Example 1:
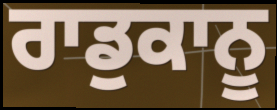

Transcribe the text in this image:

ਰਾਡੁਕਾਨੂ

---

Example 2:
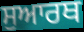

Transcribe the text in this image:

ਸੁਆਰਥ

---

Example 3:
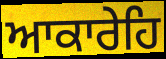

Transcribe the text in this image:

ਆਕਾਰੇਹਿ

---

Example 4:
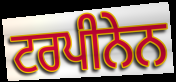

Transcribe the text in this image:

ਟਰਪੀਨੇਨ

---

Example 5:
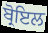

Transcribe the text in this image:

ਬ੍ਰੋਇਲ